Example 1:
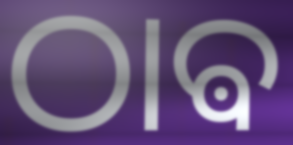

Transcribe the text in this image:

ଠାଵ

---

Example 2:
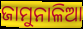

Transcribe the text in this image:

ଜାମୁନାଳିଆ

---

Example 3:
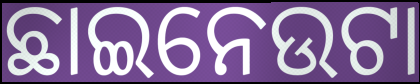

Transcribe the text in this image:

ଛାଇନେଉଟା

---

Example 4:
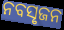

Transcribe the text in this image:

ନବସୃଜନ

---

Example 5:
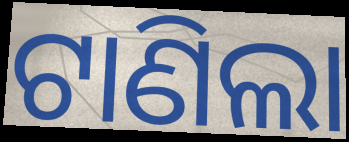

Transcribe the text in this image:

ଟାଣିଲା